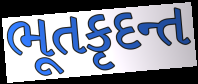
ભૂતકૃદન્ત